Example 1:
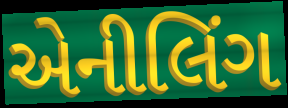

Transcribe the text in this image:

એનીલિંગ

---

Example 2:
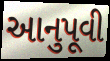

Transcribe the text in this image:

આનુપૂવી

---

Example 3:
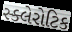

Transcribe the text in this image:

સ્ક્લેરોટિક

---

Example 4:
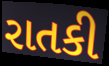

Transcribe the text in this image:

રાતકી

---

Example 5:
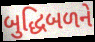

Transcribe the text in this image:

બુદ્ધિબળને